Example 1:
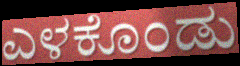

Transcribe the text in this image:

ಎಳಕೊಂಡು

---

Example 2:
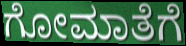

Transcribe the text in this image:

ಗೋಮಾತೆಗೆ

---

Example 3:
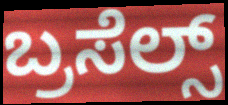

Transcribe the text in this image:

ಬ್ರಸೆಲ್ಸ್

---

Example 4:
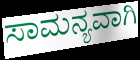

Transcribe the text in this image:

ಸಾಮನ್ಯವಾಗಿ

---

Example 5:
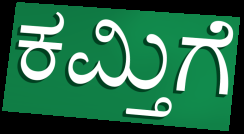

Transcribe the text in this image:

ಕಮ್ತಿಗೆ